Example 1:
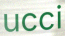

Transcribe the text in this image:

ucci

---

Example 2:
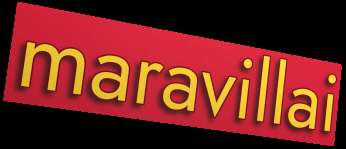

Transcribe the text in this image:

maravillai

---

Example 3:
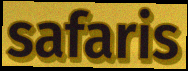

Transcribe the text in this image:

safaris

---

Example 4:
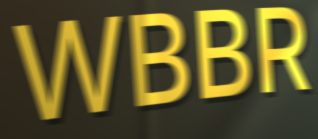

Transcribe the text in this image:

WBBR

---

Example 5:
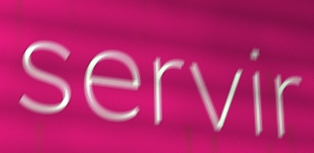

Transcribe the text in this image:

servir